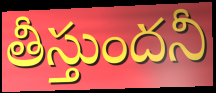
తీస్తుందనీ